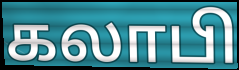
கலாபி